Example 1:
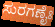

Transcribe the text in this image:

ಸುರಗಣೈಃ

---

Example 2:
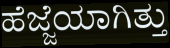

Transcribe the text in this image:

ಹೆಜ್ಜೆಯಾಗಿತ್ತು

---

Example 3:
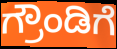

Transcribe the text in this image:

ಗ್ರೌಂಡಿಗೆ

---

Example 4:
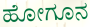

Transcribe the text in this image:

ಹೋಗೂನ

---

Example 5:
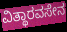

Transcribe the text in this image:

ವಿತ್ಥಾರವಸೇನ